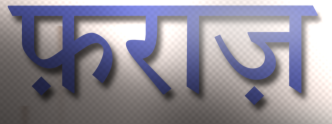
फ़राज़